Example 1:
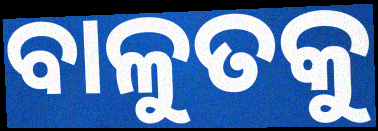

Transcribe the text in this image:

ବାଳୁତକୁ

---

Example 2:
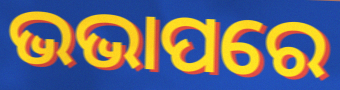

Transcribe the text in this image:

ଭଭାପରେ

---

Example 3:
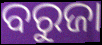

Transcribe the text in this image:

ବରୁଜା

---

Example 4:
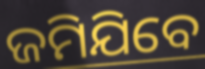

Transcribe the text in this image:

ଜମିଯିବେ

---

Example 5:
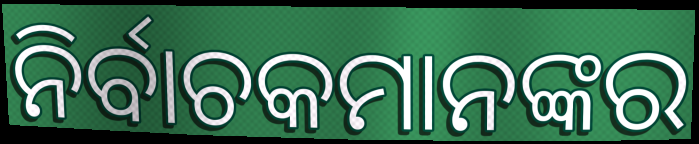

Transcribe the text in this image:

ନିର୍ବାଚକମାନଙ୍କର